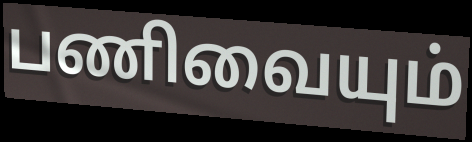
பணிவையும்